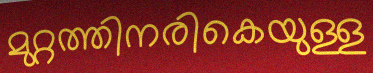
മുറ്റത്തിനരികെയുള്ള